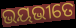
ଭୟଭୀତେ